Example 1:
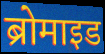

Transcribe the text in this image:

ब्रोमाइड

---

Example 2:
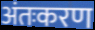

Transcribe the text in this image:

अंतःकरण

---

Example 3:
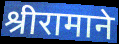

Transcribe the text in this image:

श्रीरामाने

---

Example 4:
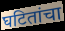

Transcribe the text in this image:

घटितांचा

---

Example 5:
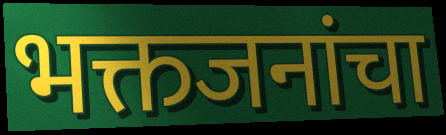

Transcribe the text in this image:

भक्तजनांचा